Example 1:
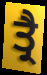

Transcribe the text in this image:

ਤ੍ਰੈ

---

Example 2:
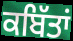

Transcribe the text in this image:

ਕਬਿੱਤਾਂ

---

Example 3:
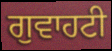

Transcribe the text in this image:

ਗੁਵਾਹਟੀ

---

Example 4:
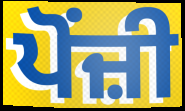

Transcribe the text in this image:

ਪੋਂਜ਼ੀ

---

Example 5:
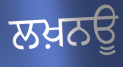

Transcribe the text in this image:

ਲਖ਼ਨਊ